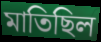
মাতিছিল